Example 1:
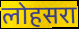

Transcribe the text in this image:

लोहसरा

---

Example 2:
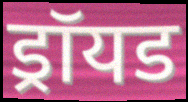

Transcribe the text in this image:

ड्रॉयड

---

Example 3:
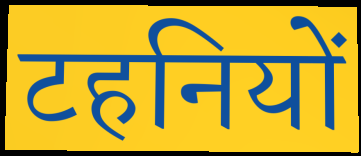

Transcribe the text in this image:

टहनियों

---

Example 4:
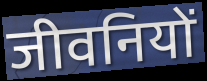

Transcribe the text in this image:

जीवनियों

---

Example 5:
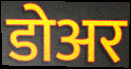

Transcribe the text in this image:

डोअर